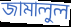
জামালুল